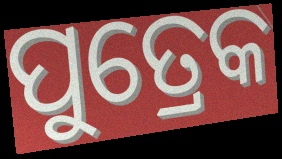
ପୁତ୍ରେକ